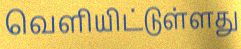
வெளியிட்டுள்ளது